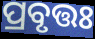
ପ୍ରବୃତ୍ତଃ